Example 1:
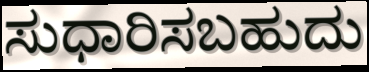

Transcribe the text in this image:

ಸುಧಾರಿಸಬಹುದು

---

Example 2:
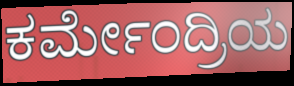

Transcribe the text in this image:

ಕರ್ಮೇಂದ್ರಿಯ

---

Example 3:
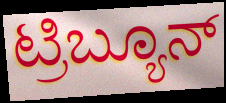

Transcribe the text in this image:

ಟ್ರಿಬ್ಯೂನ್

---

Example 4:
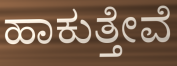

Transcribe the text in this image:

ಹಾಕುತ್ತೇವೆ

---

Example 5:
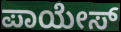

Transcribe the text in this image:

ಪಾಯೇಸ್